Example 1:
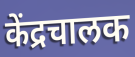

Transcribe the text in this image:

केंद्रचालक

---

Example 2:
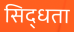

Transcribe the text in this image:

सिद्धता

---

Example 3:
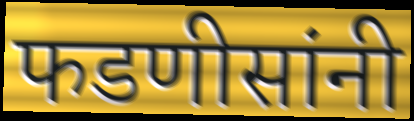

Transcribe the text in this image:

फडणीसांनी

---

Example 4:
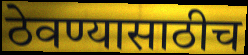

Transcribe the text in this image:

ठेवण्यासाठीच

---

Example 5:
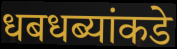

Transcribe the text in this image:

धबधब्यांकडे